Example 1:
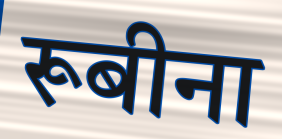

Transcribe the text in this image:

रूबीना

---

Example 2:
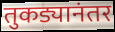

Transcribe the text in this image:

तुकड्यानंतर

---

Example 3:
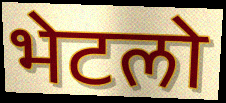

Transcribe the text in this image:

भेटलो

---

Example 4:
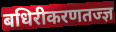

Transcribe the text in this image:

बधिरीकरणतज्ज्ञ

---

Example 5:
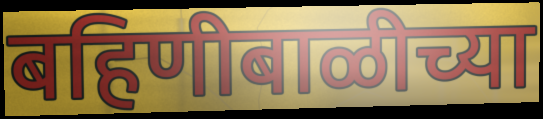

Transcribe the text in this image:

बहिणीबाळीच्या